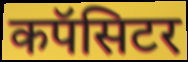
कपॅसिटर